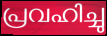
പ്രവഹിച്ചു